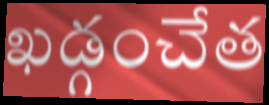
ఖడ్గంచేత